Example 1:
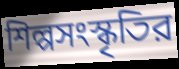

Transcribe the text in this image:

শিল্পসংস্কৃতির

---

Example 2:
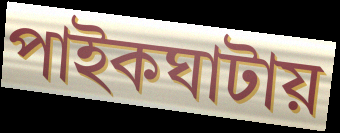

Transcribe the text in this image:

পাইকঘাটায়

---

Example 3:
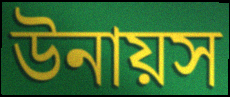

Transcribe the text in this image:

উনায়স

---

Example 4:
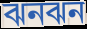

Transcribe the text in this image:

ঝনঝন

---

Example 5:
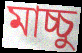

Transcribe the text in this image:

মাচ্চু